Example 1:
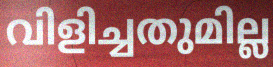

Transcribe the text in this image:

വിളിച്ചതുമില്ല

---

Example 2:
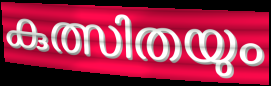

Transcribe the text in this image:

കുത്സിതയും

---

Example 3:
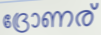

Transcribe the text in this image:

ദ്രോണര്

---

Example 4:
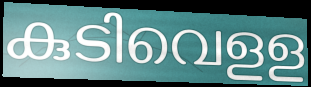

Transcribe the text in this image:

കുടിവെളള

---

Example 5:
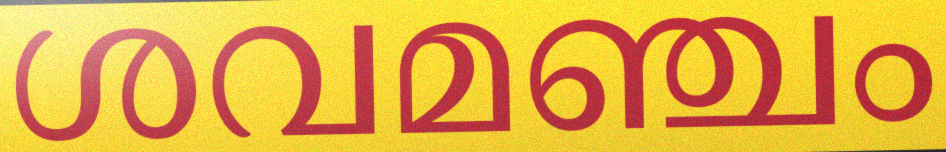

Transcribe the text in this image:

ശവമഞ്ചം